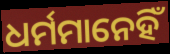
ଧର୍ମମାନେହିଁ